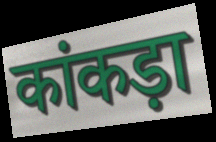
कांकड़ा